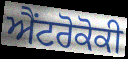
ਐਂਟਰੋਕੋਕੀ